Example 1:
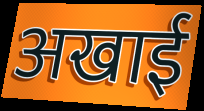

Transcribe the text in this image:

अखाई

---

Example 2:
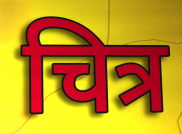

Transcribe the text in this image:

चित्र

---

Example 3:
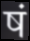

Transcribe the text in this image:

षं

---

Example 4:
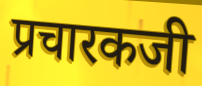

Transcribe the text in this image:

प्रचारकजी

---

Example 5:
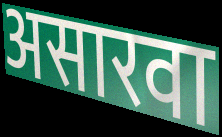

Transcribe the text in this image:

असारवा